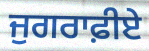
ਜੁਗਰਾਫ਼ੀਏ